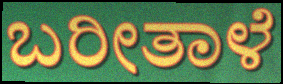
ಬರೀತಾಳೆ